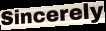
Sincerely